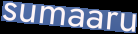
sumaaru